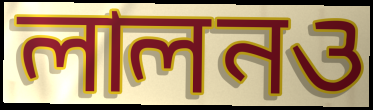
লালনও